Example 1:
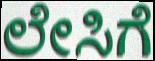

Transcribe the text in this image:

ಲೇಸಿಗೆ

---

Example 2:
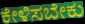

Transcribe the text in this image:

ಕೇಳಿಸಬೇಕು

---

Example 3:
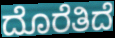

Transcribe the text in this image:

ದೊರೆತಿದೆ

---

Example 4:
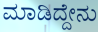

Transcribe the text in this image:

ಮಾಡಿದ್ದೇನು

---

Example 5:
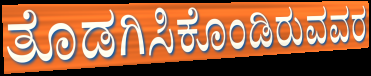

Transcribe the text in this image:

ತೊಡಗಿಸಿಕೊಂಡಿರುವವರ